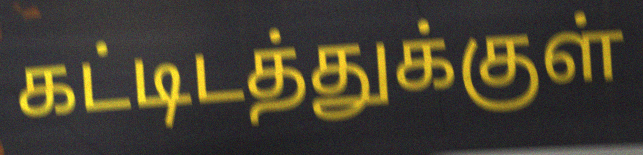
கட்டிடத்துக்குள்